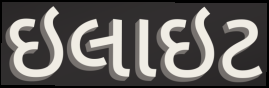
ઇલાઇટ